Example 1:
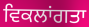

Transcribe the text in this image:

ਵਿਕਲਾਂਗਤਾ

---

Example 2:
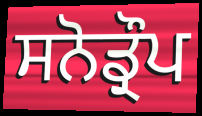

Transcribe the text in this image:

ਸਨੋਡ੍ਰੌਪ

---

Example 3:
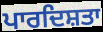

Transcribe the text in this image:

ਪਾਰਦਿਸ਼ਤਾ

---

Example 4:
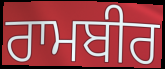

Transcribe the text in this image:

ਰਾਮਬੀਰ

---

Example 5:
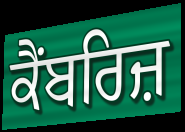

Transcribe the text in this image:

ਕੈਂਬਰਿਜ਼